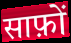
साफ़ों